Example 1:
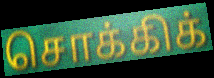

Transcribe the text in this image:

சொக்கிக்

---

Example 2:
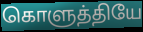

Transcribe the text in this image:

கொளுத்தியே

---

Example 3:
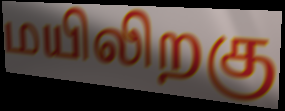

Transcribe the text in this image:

மயிலிறகு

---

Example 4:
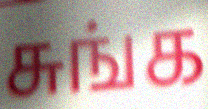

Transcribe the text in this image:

சுங்க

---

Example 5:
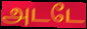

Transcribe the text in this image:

அடடே